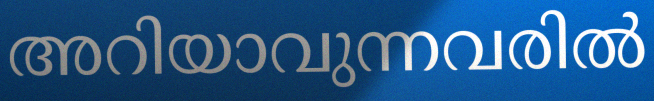
അറിയാവുന്നവരിൽ